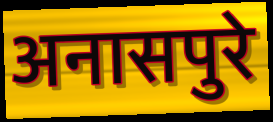
अनासपुरे